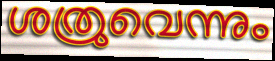
ശത്രുവെന്നും